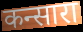
कन्सारा